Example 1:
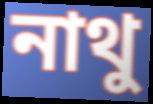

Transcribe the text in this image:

নাথু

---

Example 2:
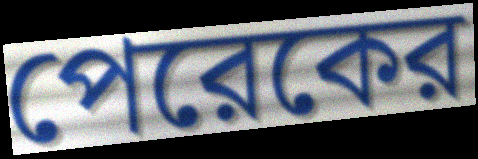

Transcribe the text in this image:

পেরেকের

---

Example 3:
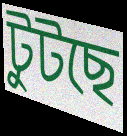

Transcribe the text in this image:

টুটছে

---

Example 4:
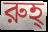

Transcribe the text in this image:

রুহ্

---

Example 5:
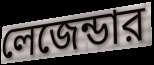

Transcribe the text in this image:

লেজেন্ডার